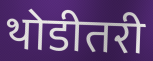
थोडीतरी